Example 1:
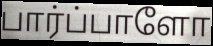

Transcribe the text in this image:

பார்ப்பாளோ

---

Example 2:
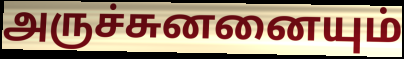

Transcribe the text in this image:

அருச்சுனனையும்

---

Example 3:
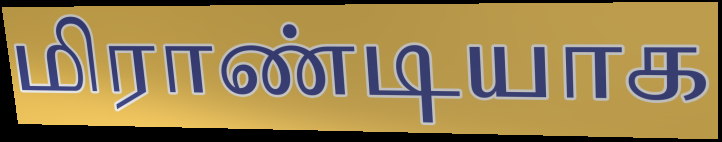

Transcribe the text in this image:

மிராண்டியாக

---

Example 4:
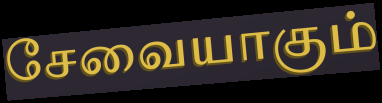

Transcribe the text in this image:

சேவையாகும்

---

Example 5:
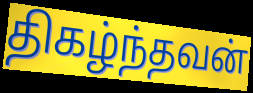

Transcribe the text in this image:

திகழ்ந்தவன்